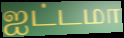
ஐட்டமா